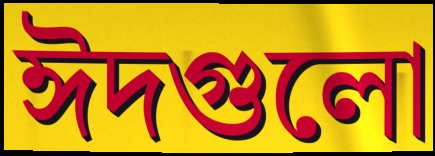
ঈদগুলো